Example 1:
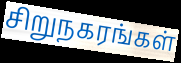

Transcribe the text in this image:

சிறுநகரங்கள்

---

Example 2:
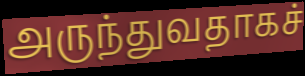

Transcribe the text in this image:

அருந்துவதாகச்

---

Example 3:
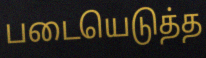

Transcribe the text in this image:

படையெடுத்த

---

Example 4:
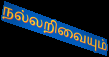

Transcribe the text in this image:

நல்லறிவையும்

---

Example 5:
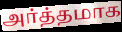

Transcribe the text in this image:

அர்த்தமாக